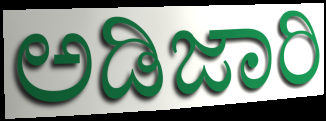
ಅಡಿಜಾರಿ